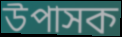
উপাসক